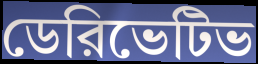
ডেরিভেটিভ